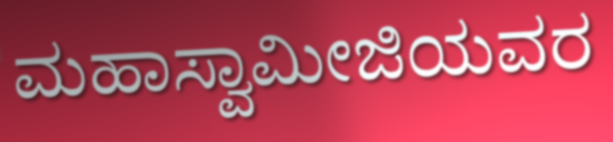
ಮಹಾಸ್ವಾಮೀಜಿಯವರ